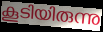
കൂടിയിരുന്നു